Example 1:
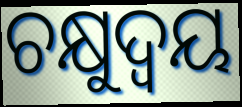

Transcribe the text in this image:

ଚକ୍ଷୁଦ୍ଵୟ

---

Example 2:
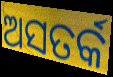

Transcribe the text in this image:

ଅସତର୍କ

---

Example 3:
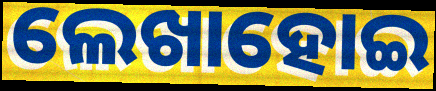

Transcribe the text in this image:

ଲେଖାହୋଇ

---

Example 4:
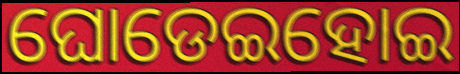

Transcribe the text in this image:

ଘୋଡେଇହୋଇ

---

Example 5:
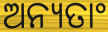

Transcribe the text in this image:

ଅନ୍ୟତାଂ